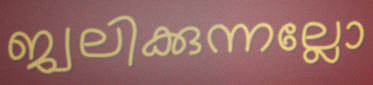
ജ്വലിക്കുന്നല്ലോ